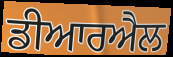
ਡੀਆਰਐਲ